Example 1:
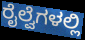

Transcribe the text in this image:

ರೈಲ್ವೆಗಳಲ್ಲಿ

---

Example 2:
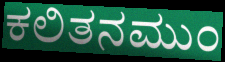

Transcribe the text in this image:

ಕಲಿತನಮುಂ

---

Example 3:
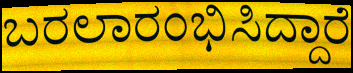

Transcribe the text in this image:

ಬರಲಾರಂಭಿಸಿದ್ದಾರೆ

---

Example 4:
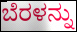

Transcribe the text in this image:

ಬೆರಳನ್ನು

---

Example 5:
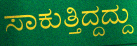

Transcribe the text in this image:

ಸಾಕುತ್ತಿದ್ದದ್ದು